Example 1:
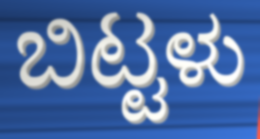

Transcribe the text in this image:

ಬಿಟ್ಟಳು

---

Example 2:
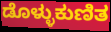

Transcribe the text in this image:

ಡೊಳ್ಳುಕುಣಿತ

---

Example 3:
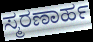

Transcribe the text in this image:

ಸ್ಮರಣಾರ್ಹ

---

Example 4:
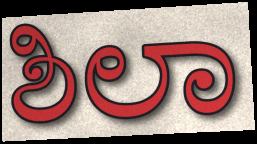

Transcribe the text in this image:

ಶಿಲಾ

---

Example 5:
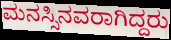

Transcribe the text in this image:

ಮನಸ್ಸಿನವರಾಗಿದ್ದರು